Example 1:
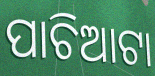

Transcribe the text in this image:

ପାଚିଆଟା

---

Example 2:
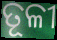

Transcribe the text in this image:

ତୂଳୀ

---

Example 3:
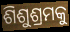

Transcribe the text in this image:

ଶିଶୁଶ୍ରମକୁ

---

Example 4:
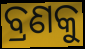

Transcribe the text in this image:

ବ୍ରଣକୁ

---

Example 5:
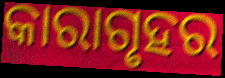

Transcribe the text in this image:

କାରାଗୃହର